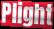
Plight